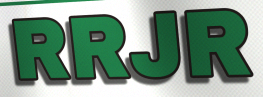
RRJR